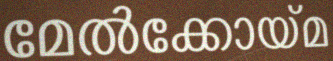
മേൽക്കോയ്മ